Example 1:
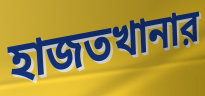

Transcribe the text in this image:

হাজতখানার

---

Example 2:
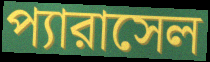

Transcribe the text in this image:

প্যারাসেল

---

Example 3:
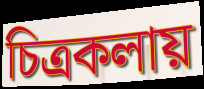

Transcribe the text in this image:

চিত্রকলায়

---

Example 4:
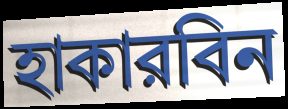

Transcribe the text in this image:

হাকারবিন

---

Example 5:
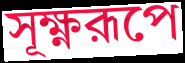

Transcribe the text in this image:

সূক্ষ্ণরূপে